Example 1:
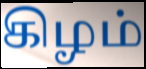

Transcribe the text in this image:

கிழம்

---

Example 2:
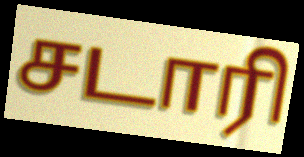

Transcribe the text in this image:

சடாரி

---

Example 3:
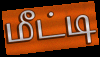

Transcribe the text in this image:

மீட்டி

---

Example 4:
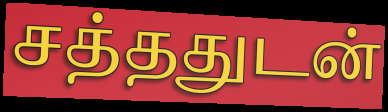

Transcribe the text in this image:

சத்ததுடன்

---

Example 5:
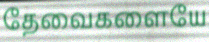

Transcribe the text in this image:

தேவைகளையே